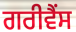
ਗਰੀਵੈਂਸ